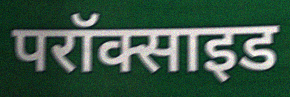
परॉक्साइड